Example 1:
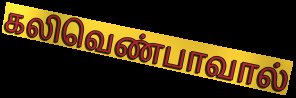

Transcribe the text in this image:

கலிவெண்பாவால்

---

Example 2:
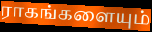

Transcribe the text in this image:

ராகங்களையும்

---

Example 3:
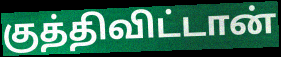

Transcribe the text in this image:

குத்திவிட்டான்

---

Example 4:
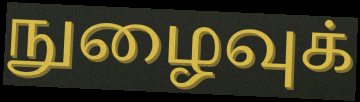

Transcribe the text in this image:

நுழைவுக்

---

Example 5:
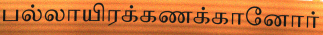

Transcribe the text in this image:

பல்லாயிரக்கணக்கானோர்